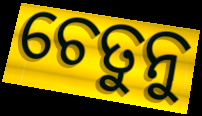
ଚେତୁନୁ